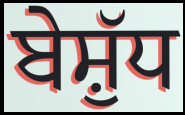
ਬੇਸ਼ੁੱਧ